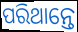
ପରିଥାନ୍ତେ